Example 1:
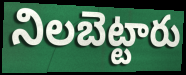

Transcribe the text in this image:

నిలబెట్టారు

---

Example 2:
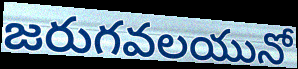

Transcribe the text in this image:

జరుగవలయునో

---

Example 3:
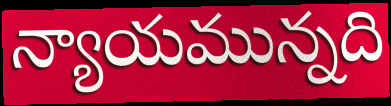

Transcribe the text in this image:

న్యాయమున్నది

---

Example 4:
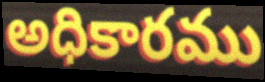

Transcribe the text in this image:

అధికారము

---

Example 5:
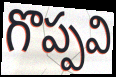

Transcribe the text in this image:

గొప్పవి